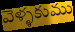
వెళ్ళకుము